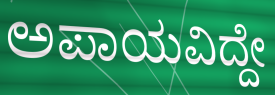
ಅಪಾಯವಿದ್ದೇ